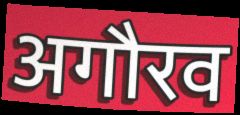
अगौरव